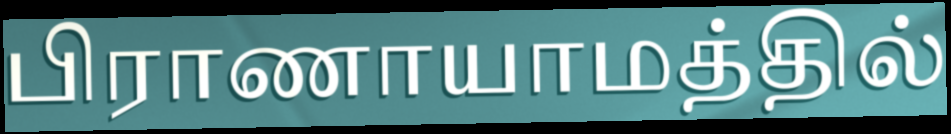
பிராணாயாமத்தில்